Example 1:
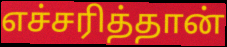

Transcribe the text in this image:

எச்சரித்தான்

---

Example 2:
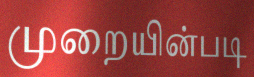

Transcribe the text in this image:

முறையின்படி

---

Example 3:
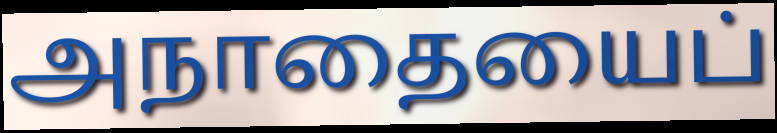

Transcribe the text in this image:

அநாதையைப்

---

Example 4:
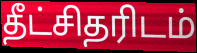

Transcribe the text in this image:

தீட்சிதரிடம்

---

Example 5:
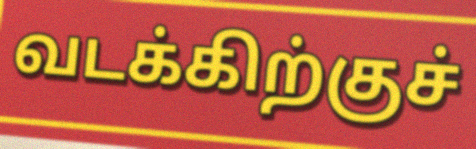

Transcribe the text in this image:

வடக்கிற்குச்